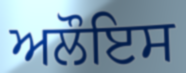
ਅਲੌਇਸ